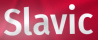
Slavic